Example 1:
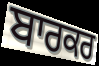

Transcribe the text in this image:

ਬਾਰਕਰ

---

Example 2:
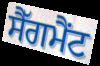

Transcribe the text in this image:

ਸੈੱਗਮੈਂਟ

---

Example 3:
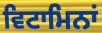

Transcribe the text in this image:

ਵਿਟਾਮਿਨਾਂ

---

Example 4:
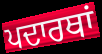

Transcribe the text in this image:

ਪਦਾਰਥਾਂ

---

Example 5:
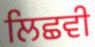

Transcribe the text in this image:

ਲਿਛਵੀ